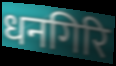
धनगिरि